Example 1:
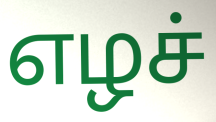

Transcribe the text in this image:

எழச்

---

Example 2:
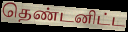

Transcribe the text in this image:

தெண்டனிட்ட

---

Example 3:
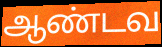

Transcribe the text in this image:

ஆண்டவ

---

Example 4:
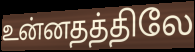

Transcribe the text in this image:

உன்னதத்திலே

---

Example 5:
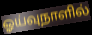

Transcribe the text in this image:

ஓய்வுநாளில்